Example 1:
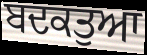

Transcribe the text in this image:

ਬਦਕਤੁਆ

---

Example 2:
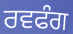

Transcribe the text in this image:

ਰਵਫੰਗ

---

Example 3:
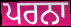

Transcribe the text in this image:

ਪਰਨਾ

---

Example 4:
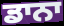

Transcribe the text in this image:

ਡਾਨਾ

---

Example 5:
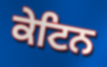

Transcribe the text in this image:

ਕੇਟਿਨ